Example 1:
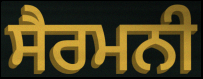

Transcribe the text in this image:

ਸੈਰਮਨੀ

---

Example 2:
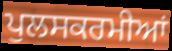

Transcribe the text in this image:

ਪੁਲਸਕਰਮੀਆਂ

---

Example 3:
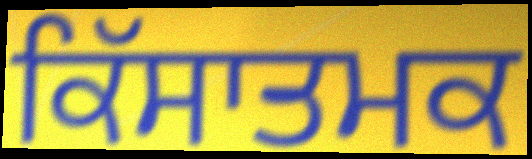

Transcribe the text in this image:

ਕਿੱਸਾਤਮਕ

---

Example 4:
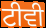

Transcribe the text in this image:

ਟੀਵੀ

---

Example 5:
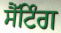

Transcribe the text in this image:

ਸੈੱਟਿੰਗ